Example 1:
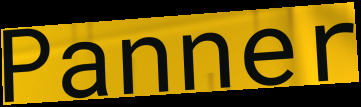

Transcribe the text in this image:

Panner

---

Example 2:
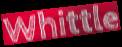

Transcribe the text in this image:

Whittle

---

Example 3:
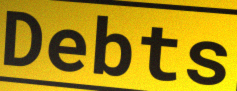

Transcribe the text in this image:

Debts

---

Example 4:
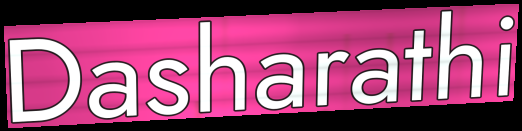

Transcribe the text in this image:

Dasharathi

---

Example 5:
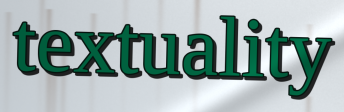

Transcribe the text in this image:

textuality